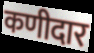
कणीदार